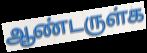
ஆண்டருள்க